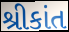
શ્રીકાંત